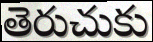
తెరుచుకు